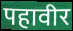
पहावीर